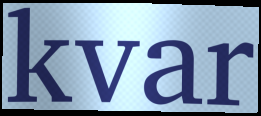
kvar